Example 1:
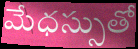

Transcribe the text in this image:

మేధస్సుతో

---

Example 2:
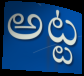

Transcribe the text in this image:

అట్ట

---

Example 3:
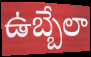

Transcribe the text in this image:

ఉబ్బేలా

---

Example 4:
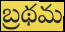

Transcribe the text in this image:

బ్రథమ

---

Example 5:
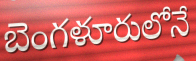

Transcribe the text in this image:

బెంగళూరులోనే